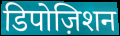
डिपोज़िशन